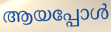
ആയപ്പോൾ